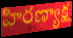
హిరణ్యాక్ష